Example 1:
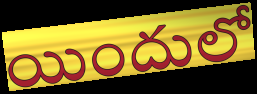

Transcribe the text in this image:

యిందులో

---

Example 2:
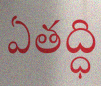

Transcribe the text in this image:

ఏతద్ధి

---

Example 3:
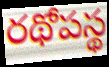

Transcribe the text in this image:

రథోపస్థ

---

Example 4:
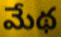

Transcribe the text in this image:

మేథ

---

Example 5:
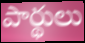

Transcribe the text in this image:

పార్థులు